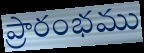
ప్రారంభము